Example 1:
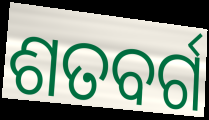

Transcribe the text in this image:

ଶତବର୍ଗ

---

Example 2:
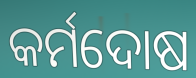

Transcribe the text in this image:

କର୍ମଦୋଷ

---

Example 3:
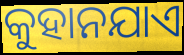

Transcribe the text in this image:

କୁହାନଯାଏ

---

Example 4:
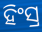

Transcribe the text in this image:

ହିଂସ୍ର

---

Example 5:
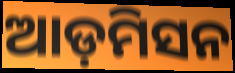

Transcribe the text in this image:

ଆଡ଼ମିସନ